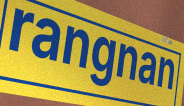
rangnan